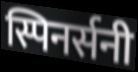
स्पिनर्सनी